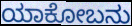
ಯಾಕೋಬನು